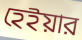
হেইয়ার